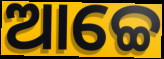
ଆଚ୍ଚେ